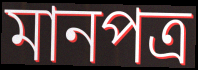
মানপত্র